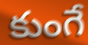
కుంగే